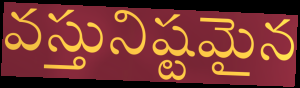
వస్తునిష్టమైన